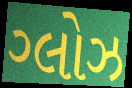
ગ્લોઝ